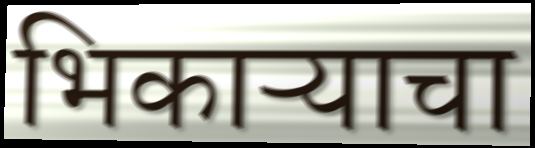
भिकाऱ्याचा